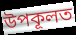
উপকূলত